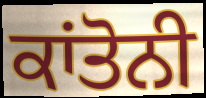
ਕਾਂਤੋਨੀ